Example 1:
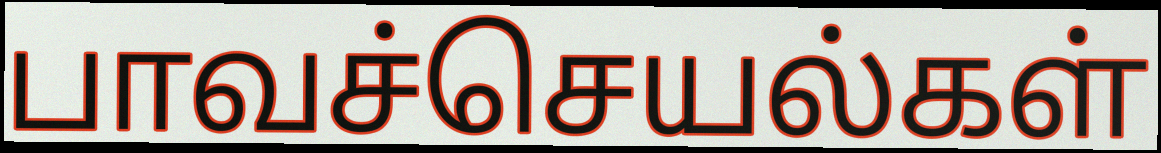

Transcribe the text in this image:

பாவச்செயல்கள்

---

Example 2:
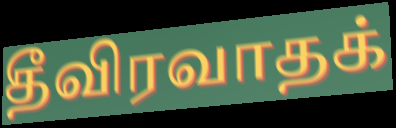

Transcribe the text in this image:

தீவிரவாதக்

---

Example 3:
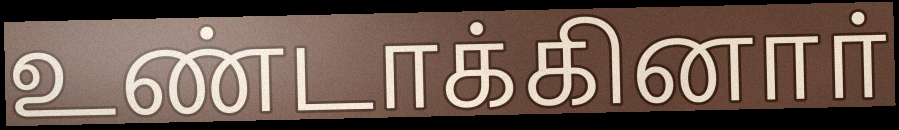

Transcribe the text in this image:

உண்டாக்கினார்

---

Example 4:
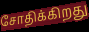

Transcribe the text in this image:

சோதிக்கிறது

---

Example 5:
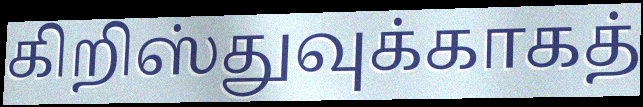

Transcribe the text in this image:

கிறிஸ்துவுக்காகத்